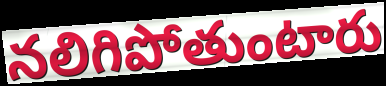
నలిగిపోతుంటారు